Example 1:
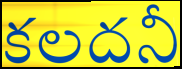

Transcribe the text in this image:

కలదనీ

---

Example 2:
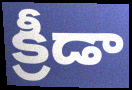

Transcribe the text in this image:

క్రీడా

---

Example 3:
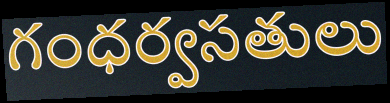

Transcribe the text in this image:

గంధర్వసతులు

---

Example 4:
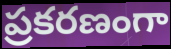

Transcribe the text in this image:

ప్రకరణంగా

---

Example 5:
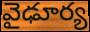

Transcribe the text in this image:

వైఢూర్య